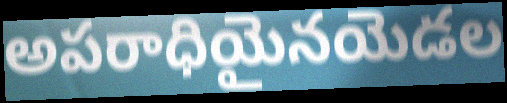
అపరాధియైనయెడల